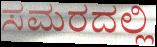
ಸಮರದಲ್ಲಿ